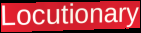
Locutionary